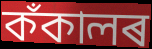
কঁকালৰ